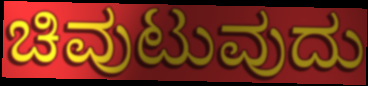
ಚಿವುಟುವುದು